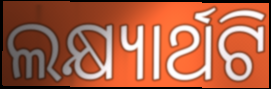
ଲକ୍ଷ୍ୟାର୍ଥଟି